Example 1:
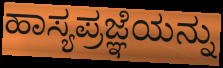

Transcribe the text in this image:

ಹಾಸ್ಯಪ್ರಜ್ಞೆಯನ್ನು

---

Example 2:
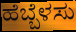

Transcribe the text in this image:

ಹೆಬ್ಬೆಳಸು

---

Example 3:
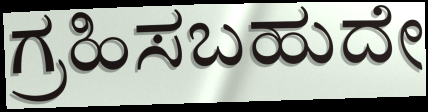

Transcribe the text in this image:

ಗ್ರಹಿಸಬಹುದೇ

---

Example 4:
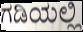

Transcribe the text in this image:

ಗಡಿಯಲ್ಲಿ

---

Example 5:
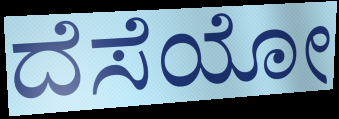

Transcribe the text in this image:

ದೆಸೆಯೋ